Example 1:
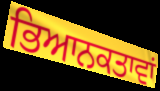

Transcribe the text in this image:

ਭਿਆਨਕਤਾਵਾਂ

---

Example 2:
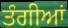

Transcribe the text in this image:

ਤੰਗੀਆਂ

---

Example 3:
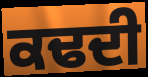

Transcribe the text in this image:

ਕਢਦੀ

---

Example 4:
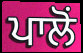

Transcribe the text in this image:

ਪਾਲੋਂ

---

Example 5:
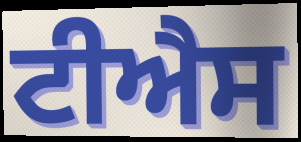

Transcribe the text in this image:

ਟੀਐਸ